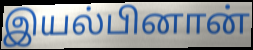
இயல்பினான்